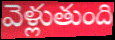
వెళ్లుతుంది